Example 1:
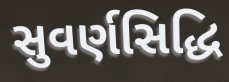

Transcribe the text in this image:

સુવર્ણસિદ્ધિ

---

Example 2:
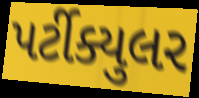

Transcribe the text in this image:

પર્ટીક્યુલર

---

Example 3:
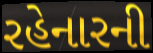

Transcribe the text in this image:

રહેનારની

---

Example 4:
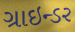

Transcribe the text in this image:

ગ્રાઇન્ડર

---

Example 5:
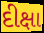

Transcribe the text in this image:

દીક્ષા